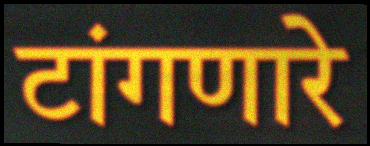
टांगणारे